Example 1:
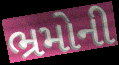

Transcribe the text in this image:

ભ્રમોની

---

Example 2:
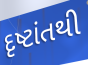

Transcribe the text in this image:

દૃષ્ટાંતથી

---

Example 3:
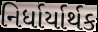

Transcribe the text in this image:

નિર્ધાર્યાર્થક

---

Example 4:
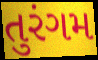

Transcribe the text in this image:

તુરંગમ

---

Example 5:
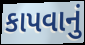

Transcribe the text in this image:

કાપવાનું